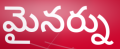
మైనర్ను